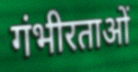
गंभीरताओं